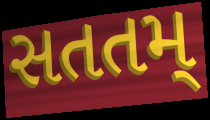
સતતમ્